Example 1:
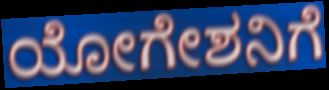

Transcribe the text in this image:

ಯೋಗೇಶನಿಗೆ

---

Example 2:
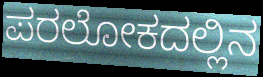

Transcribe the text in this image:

ಪರಲೋಕದಲ್ಲಿನ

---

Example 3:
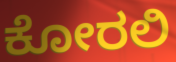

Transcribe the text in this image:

ಕೋರಲಿ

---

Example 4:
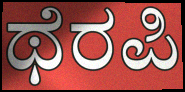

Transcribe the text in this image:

ಥೆರಪಿ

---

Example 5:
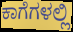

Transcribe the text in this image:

ಕಾಗೆಗಳಲ್ಲಿ